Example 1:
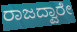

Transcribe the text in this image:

ರಾಜದ್ವಾರೇ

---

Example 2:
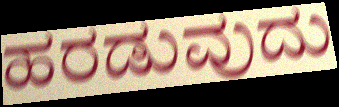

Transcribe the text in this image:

ಹರಡುವುದು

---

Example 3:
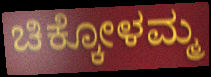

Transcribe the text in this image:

ಚಿಕ್ಕೋಳಮ್ಮ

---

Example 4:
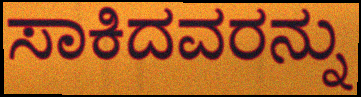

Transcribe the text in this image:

ಸಾಕಿದವರನ್ನು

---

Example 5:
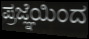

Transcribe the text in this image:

ಪ್ರಜ್ಞೆಯಿಂದ